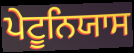
ਪੇਟੂਨਿਯਾਸ